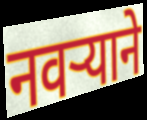
नवऱ्याने